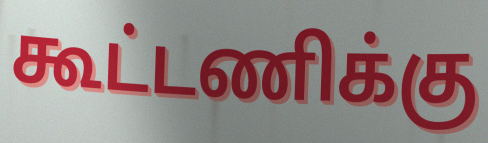
கூட்டணிக்கு